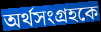
অর্থসংগ্রহকে